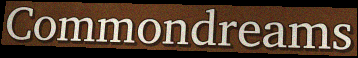
Commondreams